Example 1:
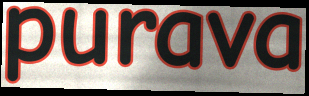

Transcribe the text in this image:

purava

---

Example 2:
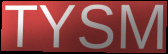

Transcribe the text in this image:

TYSM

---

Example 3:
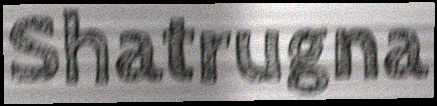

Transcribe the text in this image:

Shatrugna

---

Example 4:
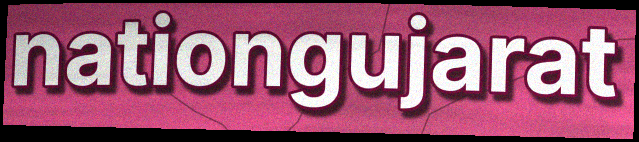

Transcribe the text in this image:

nationgujarat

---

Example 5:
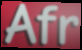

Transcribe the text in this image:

Afr